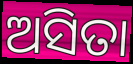
ଅସିତା